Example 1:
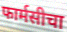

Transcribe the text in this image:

फार्मसीचा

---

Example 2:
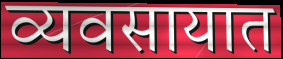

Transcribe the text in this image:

व्यवसायात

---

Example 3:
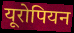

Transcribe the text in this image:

यूरोपियन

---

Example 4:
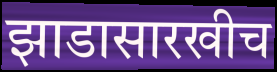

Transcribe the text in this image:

झाडासारखीच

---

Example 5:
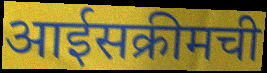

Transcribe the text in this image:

आईसक्रीमची